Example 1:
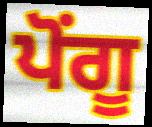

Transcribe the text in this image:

ਪੋਂਗੂ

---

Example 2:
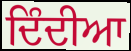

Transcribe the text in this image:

ਦਿੰਦੀਆ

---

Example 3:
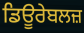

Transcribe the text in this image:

ਡਿਊਰੇਬਲਜ਼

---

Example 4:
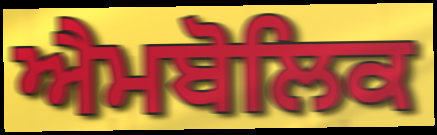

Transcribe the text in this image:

ਐਮਬੋਲਿਕ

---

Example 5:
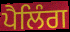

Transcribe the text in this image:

ਪੈਲਿੰਗ